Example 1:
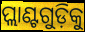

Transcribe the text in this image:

ପ୍ଲାଣ୍ଟଗୁଡ଼ିକୁ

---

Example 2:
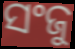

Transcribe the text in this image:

ସଂଜୁ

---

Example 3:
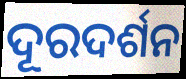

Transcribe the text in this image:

ଦୂରଦର୍ଶନ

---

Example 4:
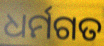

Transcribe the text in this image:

ଧର୍ମଗତ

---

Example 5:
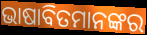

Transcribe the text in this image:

ଭାଷାବିତମାନଙ୍କର